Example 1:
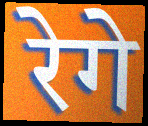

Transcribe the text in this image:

रेगे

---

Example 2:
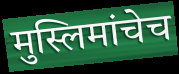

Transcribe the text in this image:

मुस्लिमांचेच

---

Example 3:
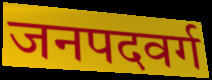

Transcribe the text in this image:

जनपदवर्ग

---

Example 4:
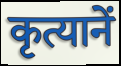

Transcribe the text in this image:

कृत्यानें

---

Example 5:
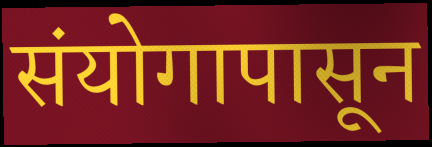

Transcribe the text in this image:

संयोगापासून